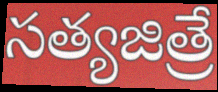
సత్యజిత్రే